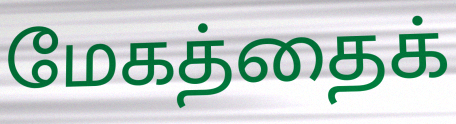
மேகத்தைக்